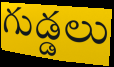
గుడ్డలు